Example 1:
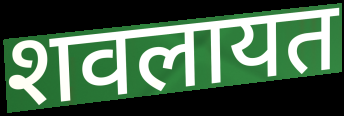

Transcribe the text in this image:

शवलायत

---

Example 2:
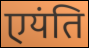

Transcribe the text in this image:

एयंति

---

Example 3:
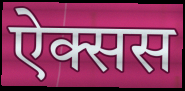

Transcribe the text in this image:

ऐक्सस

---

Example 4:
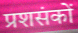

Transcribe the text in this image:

प्रशसंकों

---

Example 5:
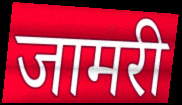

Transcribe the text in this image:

जामरी